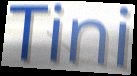
Tini